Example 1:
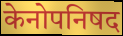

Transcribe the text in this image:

केनोपनिषद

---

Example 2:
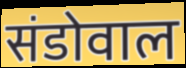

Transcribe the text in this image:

संडोवाल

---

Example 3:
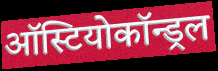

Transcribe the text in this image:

ऑस्टियोकॉन्ड्रल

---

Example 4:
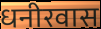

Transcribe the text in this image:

धनीरवास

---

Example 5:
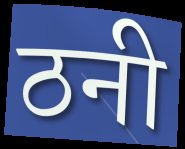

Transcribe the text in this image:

ठनी